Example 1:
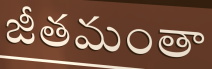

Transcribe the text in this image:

జీతమంతా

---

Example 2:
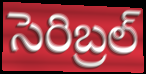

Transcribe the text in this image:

సెరిబ్రల్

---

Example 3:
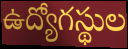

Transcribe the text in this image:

ఉద్యోగస్థుల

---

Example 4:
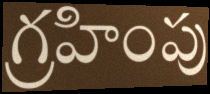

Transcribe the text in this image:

గ్రహింపు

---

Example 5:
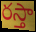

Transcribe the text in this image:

రస్తా